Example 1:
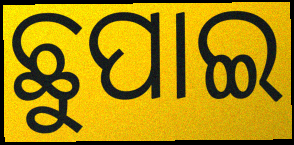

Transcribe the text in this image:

ଛୁପାଇ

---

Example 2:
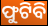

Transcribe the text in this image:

ଫୁଟିବି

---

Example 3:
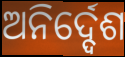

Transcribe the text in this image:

ଅନିର୍ଦ୍ଦେଶ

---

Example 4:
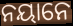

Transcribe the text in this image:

ନୟାନେ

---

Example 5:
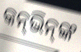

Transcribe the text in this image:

କନ୍‌ଭିନ୍‌ଙ୍କ